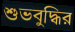
শুভবুদ্ধির